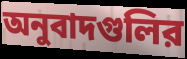
অনুবাদগুলির